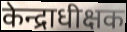
केन्द्राधीक्षक